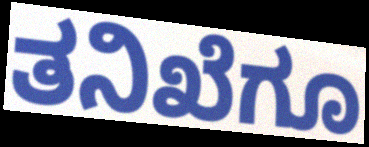
ತನಿಖೆಗೂ